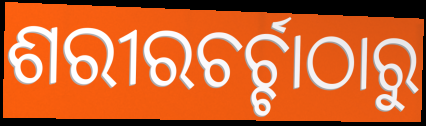
ଶରୀରଚର୍ଚ୍ଚାଠାରୁ